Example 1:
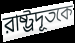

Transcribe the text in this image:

রাষ্ট্রদূতকে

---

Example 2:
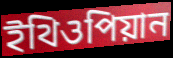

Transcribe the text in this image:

ইথিওপিয়ান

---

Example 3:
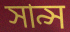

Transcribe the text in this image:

সান্স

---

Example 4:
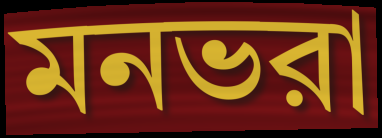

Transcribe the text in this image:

মনভরা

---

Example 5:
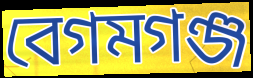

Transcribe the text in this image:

বেগমগঞ্জ